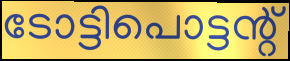
ടോട്ടിപൊട്ടന്റ്